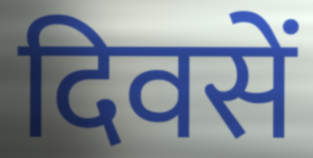
दिवसें